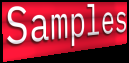
Samples